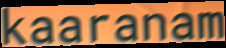
kaaranam